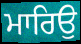
ਮਾਰਿਉ